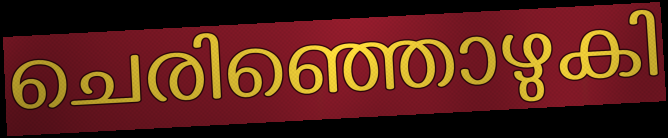
ചെരിഞ്ഞൊഴുകി